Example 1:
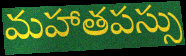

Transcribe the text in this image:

మహాతపస్సు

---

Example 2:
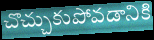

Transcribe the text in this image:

చొచ్చుకుపోవడానికి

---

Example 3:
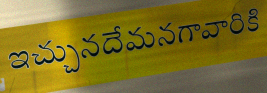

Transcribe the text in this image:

ఇచ్చునదేమనగావారికి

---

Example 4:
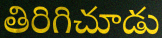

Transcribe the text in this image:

తిరిగిచూడు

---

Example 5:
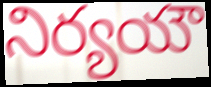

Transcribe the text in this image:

నిర్యయౌ